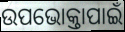
ଉପଭୋକ୍ତାପାଇଁ